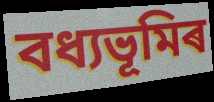
বধ্যভূমিৰ